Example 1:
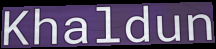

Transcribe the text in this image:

Khaldun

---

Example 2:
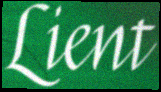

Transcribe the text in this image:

Lient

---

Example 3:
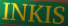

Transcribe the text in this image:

INKIS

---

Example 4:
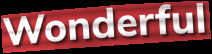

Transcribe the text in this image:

Wonderful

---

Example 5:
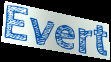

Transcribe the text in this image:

Evert